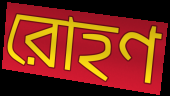
রোহণ